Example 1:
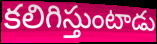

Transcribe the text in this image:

కలిగిస్తుంటాడు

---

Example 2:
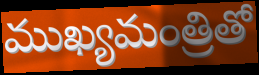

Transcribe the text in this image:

ముఖ్యమంత్రితో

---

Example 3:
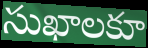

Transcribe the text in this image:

సుఖాలకూ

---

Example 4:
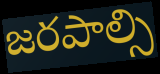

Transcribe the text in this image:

జరపాల్సి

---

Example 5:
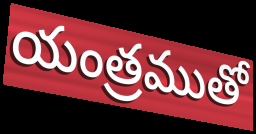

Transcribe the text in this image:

యంత్రముతో